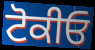
ਟੋਕੀਓ